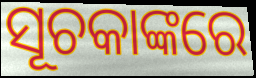
ସୂଚକାଙ୍କରେ